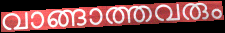
വാങ്ങാത്തവരും